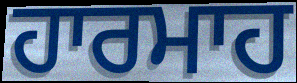
ਹਾਰਮਾਹ